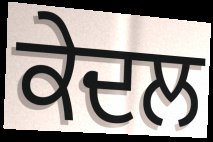
ਕੇਦਲ